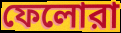
ফেলোরা